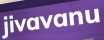
jivavanu